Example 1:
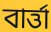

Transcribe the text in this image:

বার্ত্তা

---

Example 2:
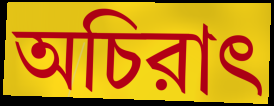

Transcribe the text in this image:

অচিরাৎ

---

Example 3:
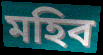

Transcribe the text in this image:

মহিব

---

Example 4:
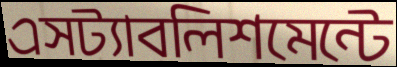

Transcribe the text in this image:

এসট্যাবলিশমেন্টে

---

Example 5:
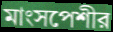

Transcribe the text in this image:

মাংসপেশীর